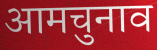
आमचुनाव